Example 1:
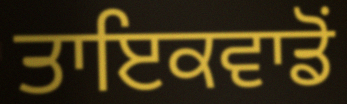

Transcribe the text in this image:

ਤਾਇਕਵਾਡੋਂ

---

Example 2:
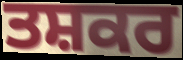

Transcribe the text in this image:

ਤਸ਼ਕਰ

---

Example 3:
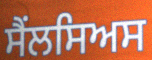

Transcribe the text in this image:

ਸੈਂਲਸਿਅਸ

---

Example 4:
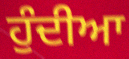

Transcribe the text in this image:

ਹੁੰਦੀਆ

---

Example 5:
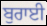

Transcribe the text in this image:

ਬੁਰਾਈ